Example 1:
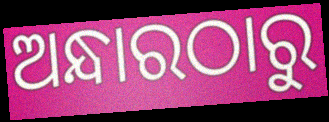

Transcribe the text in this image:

ଅନ୍ଧାରଠାରୁ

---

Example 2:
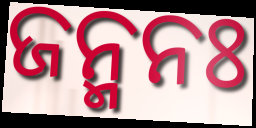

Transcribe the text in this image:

ଜନ୍ମନଃ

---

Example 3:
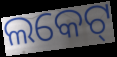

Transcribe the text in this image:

ଲକେଟ୍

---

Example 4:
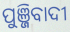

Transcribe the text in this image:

ପୁଞ୍ଜିବାଦୀ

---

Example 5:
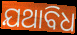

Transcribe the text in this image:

ଯଥାବିଧ